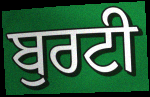
ਬੁਰਟੀ